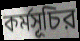
কর্মসূচির